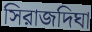
সিরাজদিঘা